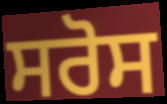
ਸਰੋਸ